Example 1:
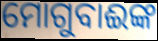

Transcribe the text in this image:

ମୋଗୁବାଈଙ୍କ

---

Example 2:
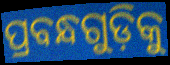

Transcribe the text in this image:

ପ୍ରବନ୍ଧଗୁଡ଼ିକୁ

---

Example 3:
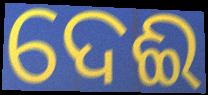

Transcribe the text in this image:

ଦେଈ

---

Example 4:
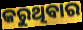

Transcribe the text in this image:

କରୁଥିବାର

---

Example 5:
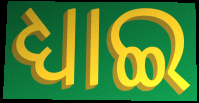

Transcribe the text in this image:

ଧ୍ୟାଇ